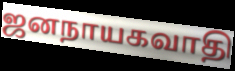
ஜனநாயகவாதி